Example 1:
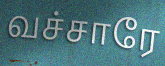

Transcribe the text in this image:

வச்சாரே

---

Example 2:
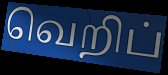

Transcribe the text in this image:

வெறிப்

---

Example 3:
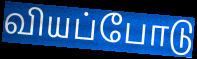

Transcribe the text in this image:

வியப்போடு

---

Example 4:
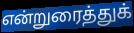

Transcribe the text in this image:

என்றுரைத்துக்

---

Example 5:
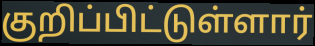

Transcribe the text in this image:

குறிப்பிட்டுள்ளார்